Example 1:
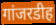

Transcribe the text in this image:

गांजरडीह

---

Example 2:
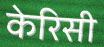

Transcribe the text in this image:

केरिसी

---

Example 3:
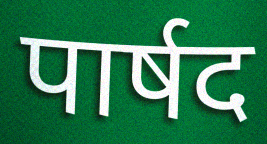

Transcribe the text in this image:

पार्षद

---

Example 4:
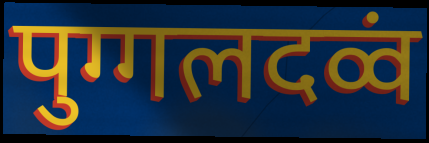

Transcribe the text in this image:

पुग्गलदव्वं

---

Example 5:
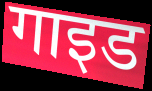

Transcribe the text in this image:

गाइड